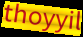
thoyyil